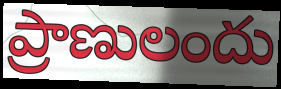
ప్రాణులందు